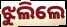
ଝୁଲିଲେ